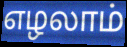
எழலாம்